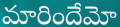
మారిందేమో